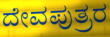
ದೇವಪುತ್ರರ